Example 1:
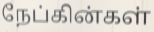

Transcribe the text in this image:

நேப்கின்கள்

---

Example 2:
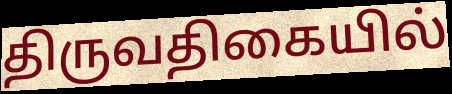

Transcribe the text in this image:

திருவதிகையில்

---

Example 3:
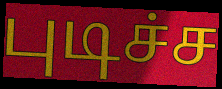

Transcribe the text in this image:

புடிச்ச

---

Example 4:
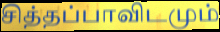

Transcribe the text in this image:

சித்தப்பாவிடமும்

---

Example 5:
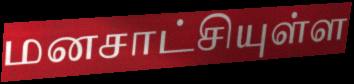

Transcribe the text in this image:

மனசாட்சியுள்ள